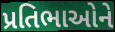
પ્રતિભાઓને